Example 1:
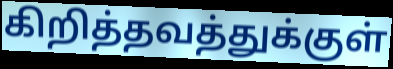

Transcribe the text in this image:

கிறித்தவத்துக்குள்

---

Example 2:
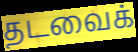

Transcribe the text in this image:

தடவைக்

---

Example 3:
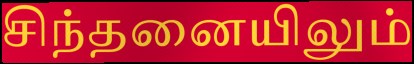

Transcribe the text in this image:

சிந்தனையிலும்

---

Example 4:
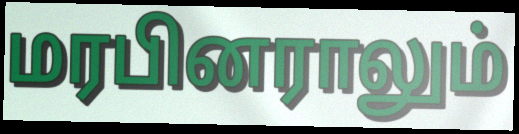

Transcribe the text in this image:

மரபினராலும்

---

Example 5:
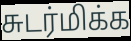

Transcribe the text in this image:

சுடர்மிக்க